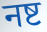
नष्ट